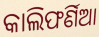
କାଲିଫର୍ଣିଆ